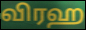
விரஹ